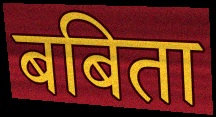
बबिता